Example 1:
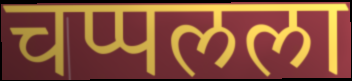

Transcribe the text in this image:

चप्पलला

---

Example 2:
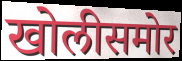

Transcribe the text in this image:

खोलीसमोर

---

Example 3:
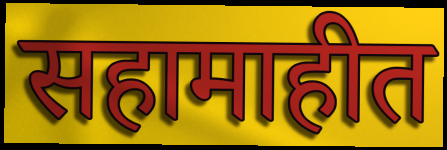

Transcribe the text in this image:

सहामाहीत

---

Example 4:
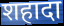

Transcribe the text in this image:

शहादा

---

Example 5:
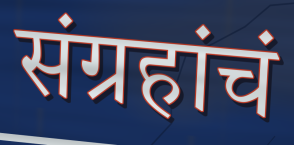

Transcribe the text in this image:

संग्रहांचं